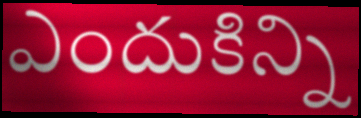
ఎందుకిన్ని